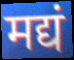
मद्यं